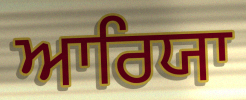
ਆਰਿਯਾ